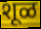
शूळ